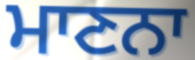
ਮਾਣਨਾ